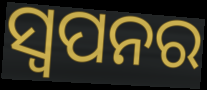
ସ୍ଵପନର